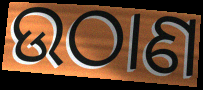
ଉଠାଣ